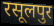
रसूलपुर